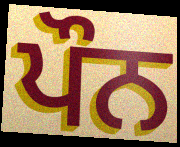
ਪੌਨ